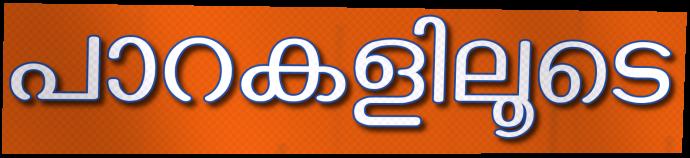
പാറകളിലൂടെ